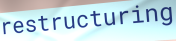
restructuring